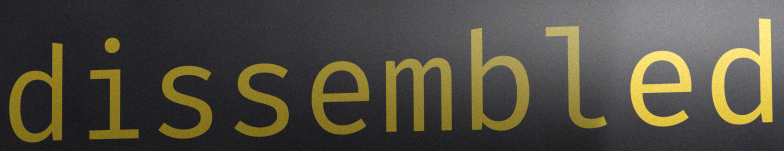
dissembled